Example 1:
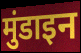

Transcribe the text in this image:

मुंडाइन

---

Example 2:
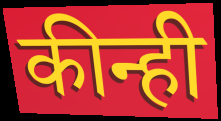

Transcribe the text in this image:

कीन्ही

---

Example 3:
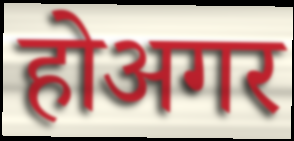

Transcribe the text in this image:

होअगर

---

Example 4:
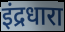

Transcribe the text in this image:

इंद्रधारा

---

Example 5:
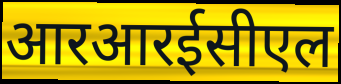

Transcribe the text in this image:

आरआरईसीएल